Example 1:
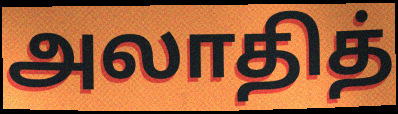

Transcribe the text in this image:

அலாதித்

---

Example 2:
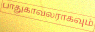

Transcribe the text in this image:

பாதுகாவலராகவும்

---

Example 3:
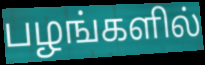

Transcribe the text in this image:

பழங்களில்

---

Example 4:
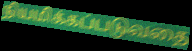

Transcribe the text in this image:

நியமிக்கப்படுவதை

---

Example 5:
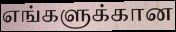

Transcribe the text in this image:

எங்களுக்கான